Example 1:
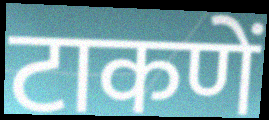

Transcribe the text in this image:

टाकणें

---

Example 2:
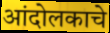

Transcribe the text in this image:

आंदोलकाचे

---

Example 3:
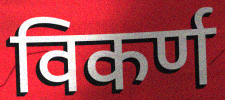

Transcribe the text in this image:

विकर्ण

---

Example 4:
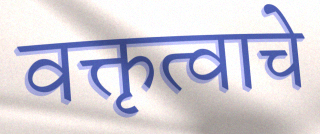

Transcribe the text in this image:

वक्तृत्वाचे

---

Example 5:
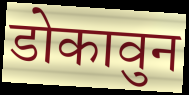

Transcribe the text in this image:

डोकावुन